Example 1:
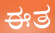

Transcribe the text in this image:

ಈತ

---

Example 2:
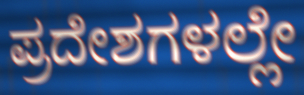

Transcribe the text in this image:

ಪ್ರದೇಶಗಳಲ್ಲೇ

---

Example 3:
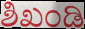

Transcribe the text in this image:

ಶಿಖಂಡಿ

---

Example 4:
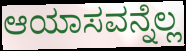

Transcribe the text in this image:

ಆಯಾಸವನ್ನೆಲ್ಲ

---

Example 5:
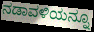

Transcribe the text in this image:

ನಡಾವಳಿಯನ್ನೂ